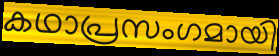
കഥാപ്രസംഗമായി